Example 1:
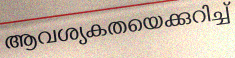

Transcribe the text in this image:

ആവശ്യകതയെക്കുറിച്ച്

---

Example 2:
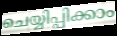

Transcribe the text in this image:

ചെയ്യിപ്പിക്കാം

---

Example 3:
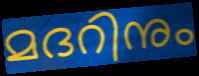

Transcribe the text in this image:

മദറിനും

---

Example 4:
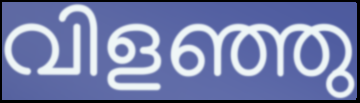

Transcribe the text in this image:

വിളഞ്ഞു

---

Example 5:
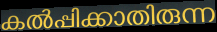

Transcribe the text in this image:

കൽപ്പിക്കാതിരുന്ന